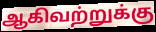
ஆகிவற்றுக்கு